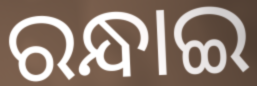
ରନ୍ଧାଇ